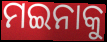
ମଇନାକୁ